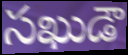
సఖుడౌ